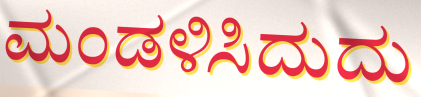
ಮಂಡಳಿಸಿದುದು